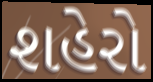
શહેરો